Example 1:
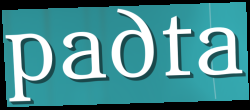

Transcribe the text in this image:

padta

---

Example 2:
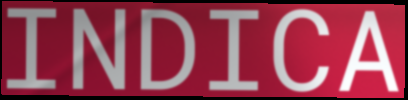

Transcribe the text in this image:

INDICA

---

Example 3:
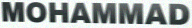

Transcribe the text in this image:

MOHAMMAD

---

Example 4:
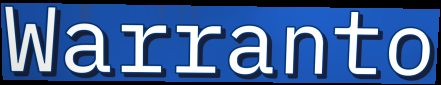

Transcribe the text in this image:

Warranto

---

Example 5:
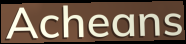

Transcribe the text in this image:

Acheans